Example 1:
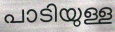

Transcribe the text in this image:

പാടിയുള്ള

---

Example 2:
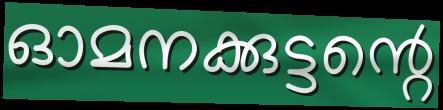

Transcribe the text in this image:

ഓമനക്കുട്ടന്റെ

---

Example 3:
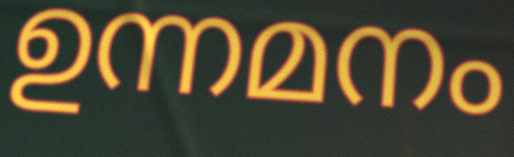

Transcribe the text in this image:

ഉന്നമനം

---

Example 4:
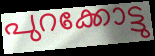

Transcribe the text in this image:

പുറക്കോട്ടു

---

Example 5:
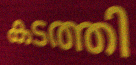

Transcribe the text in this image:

കടത്തി